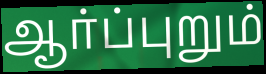
ஆர்ப்புறும்